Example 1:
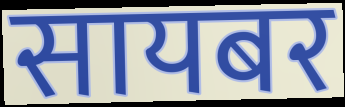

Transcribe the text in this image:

सायबर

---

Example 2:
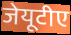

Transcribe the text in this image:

जेयूटीए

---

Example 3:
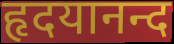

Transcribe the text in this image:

हृदयानन्द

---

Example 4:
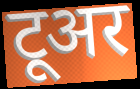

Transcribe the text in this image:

टूअर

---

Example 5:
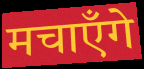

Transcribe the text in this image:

मचाएँगे